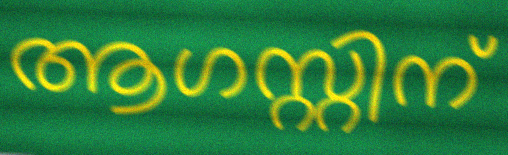
ആഗസ്റ്റിന്